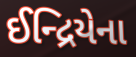
ઈન્દ્રિયેના